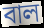
বাল